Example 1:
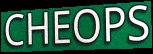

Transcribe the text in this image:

CHEOPS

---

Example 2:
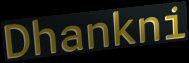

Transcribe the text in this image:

Dhankni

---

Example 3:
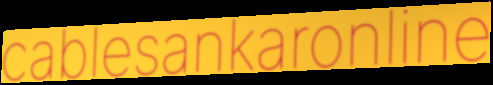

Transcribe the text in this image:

cablesankaronline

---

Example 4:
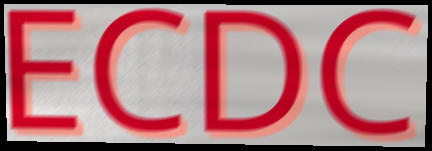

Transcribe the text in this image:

ECDC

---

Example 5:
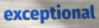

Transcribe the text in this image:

exceptional